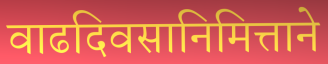
वाढदिवसानिमित्ताने